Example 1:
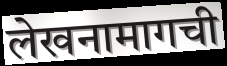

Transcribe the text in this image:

लेखनामागची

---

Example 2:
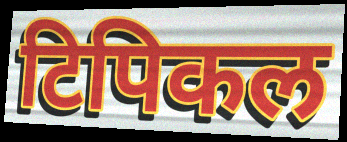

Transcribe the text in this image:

टिपिकल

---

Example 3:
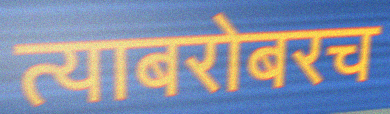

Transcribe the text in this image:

त्याबरोबरच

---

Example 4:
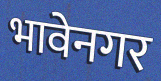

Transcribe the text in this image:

भावेनगर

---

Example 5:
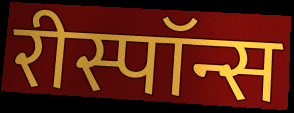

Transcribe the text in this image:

रीस्पॉन्स